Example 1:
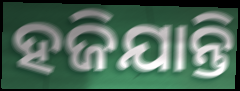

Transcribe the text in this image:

ହଜିଯାନ୍ତି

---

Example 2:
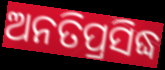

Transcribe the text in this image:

ଅନତିପ୍ରସିଦ୍ଧ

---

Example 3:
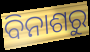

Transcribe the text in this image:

ବିନାଶରୁ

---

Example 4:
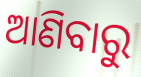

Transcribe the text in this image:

ଆଣିବାରୁ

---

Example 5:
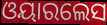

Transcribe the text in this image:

ଓୟାରଲେସ